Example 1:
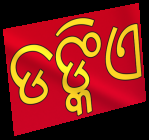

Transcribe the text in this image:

ଡଙ୍କିଏ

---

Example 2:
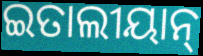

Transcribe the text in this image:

ଇତାଲୀୟାନ୍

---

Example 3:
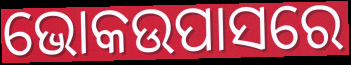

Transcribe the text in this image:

ଭୋକଉପାସରେ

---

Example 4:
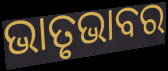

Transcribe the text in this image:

ଭାତୃଭାବର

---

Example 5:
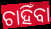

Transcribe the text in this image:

ଚାହିଁବା